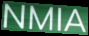
NMIA